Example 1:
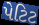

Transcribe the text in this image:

પેટિટ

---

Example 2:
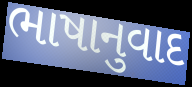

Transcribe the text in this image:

ભાષાનુવાદ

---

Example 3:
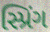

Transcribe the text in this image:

સ્પ્રિંગ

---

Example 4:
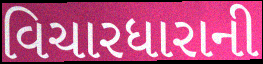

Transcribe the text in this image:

વિચારધારાની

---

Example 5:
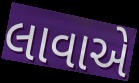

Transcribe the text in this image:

લાવાએ